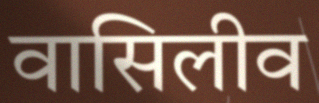
वासिलीव